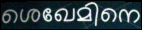
ശെഖേമിനെ